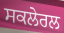
ਸਕਲੇਰਲ